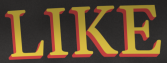
LIKE